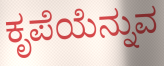
ಕೃಪೆಯೆನ್ನುವ